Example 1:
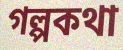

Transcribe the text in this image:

গল্পকথা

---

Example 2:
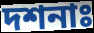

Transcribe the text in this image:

দশনাঃ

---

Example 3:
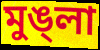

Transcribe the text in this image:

মুঙ্লা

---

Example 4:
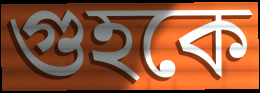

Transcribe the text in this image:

গুহকে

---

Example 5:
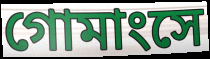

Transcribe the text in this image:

গোমাংসে